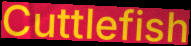
Cuttlefish